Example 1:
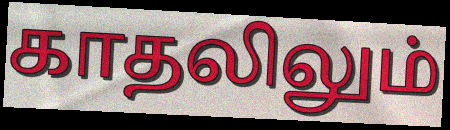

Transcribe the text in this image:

காதலிலும்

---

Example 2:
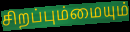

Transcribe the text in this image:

சிறப்பும்மையும்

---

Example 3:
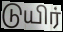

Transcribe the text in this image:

டுயிர்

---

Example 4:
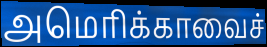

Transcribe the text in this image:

அமெரிக்காவைச்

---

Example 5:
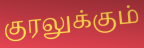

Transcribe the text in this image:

குரலுக்கும்